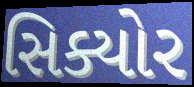
સિક્યોર